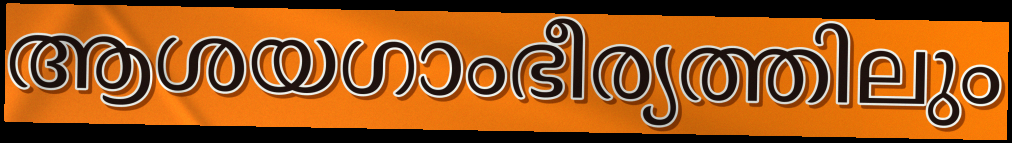
ആശയഗാംഭീര്യത്തിലും